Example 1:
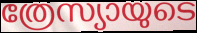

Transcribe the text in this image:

ത്രേസ്യായുടെ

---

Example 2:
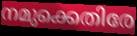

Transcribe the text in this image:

നമുക്കെതിരേ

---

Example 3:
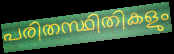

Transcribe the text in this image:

പരിതസ്ഥിതികളും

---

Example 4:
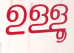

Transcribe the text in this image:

ഉള്ളൂ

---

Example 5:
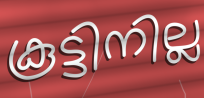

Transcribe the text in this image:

കൂട്ടിനില്ല